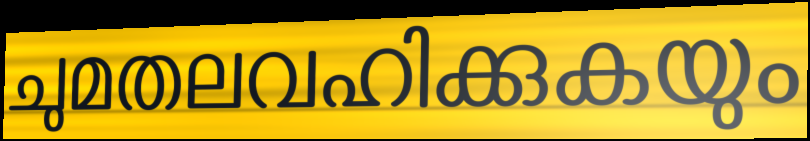
ചുമതലവഹിക്കുകയും